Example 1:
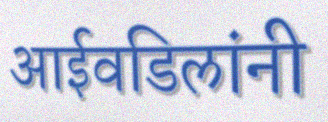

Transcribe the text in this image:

आईवडिलांनी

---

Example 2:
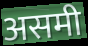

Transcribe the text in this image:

असमी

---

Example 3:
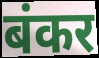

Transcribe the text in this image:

बंकर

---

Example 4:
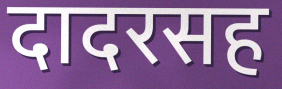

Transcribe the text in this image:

दादरसह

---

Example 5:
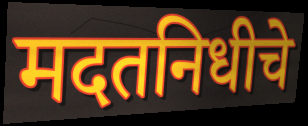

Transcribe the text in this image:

मदतनिधीचे